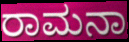
ರಾಮನಾ